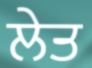
ਲੇਤ